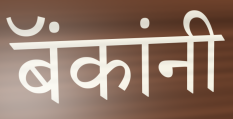
बॅंकांनी